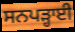
ਸਨਪੜ੍ਹਾਈ